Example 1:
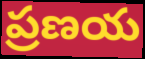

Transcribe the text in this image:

ప్రణయ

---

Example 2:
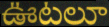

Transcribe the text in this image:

ఊటలూ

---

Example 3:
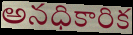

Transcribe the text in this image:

అనధికారిక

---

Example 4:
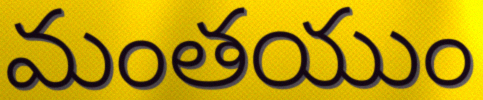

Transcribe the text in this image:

మంతయుం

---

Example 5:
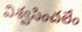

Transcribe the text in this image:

విశ్వసించలేం